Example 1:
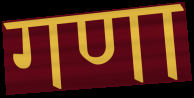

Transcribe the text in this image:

गणा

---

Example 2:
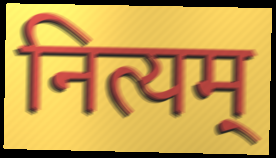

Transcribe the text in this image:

नित्यम्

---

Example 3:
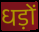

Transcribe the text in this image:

धड़ों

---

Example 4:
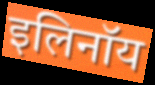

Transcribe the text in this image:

इलिनॉय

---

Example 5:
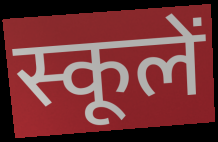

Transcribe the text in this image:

स्कूलें